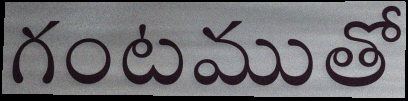
గంటముతో